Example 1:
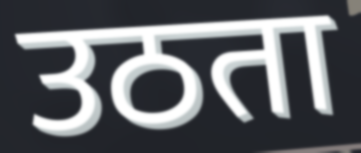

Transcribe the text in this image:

उठता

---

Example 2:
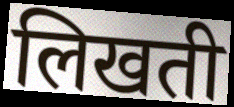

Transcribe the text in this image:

लिखती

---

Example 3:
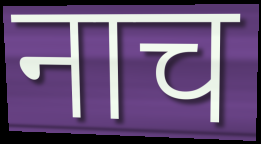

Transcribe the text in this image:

नाच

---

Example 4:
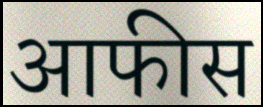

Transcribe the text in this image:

आफीस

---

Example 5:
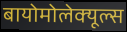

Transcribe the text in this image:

बायोमोलेक्यूल्स